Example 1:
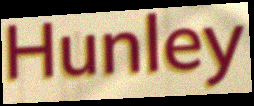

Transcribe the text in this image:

Hunley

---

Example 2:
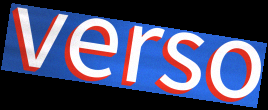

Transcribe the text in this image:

verso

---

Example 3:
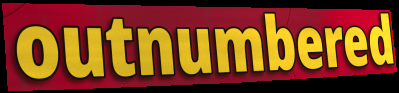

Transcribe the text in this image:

outnumbered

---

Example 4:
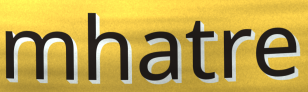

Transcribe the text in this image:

mhatre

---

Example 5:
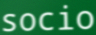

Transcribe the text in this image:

socio